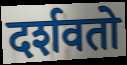
दर्शवतो